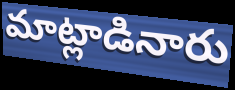
మాట్లాడినారు